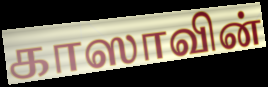
காஸாவின்